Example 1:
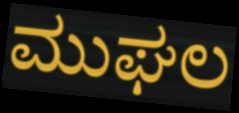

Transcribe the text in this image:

ಮುಘಲ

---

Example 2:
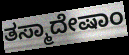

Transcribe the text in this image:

ತಸ್ಮಾದೇಷಾಂ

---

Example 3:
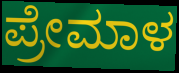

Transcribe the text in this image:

ಪ್ರೇಮಾಳ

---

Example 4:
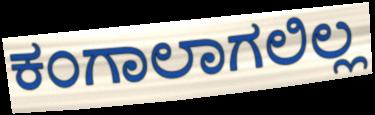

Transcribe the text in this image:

ಕಂಗಾಲಾಗಲಿಲ್ಲ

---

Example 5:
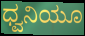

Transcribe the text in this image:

ಧ್ವನಿಯೂ